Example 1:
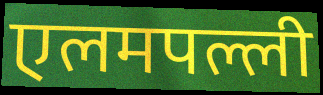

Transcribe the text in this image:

एलमपल्ली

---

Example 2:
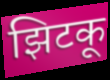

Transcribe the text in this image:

झिटकू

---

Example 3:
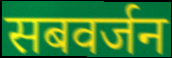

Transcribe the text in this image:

सबवर्जन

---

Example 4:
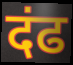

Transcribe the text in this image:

दंढ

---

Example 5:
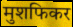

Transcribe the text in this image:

मुशफिकर